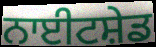
ਨਾਈਟਸ਼ੇਡ